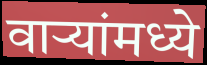
वाऱ्यांमध्ये